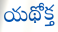
యథోక్త